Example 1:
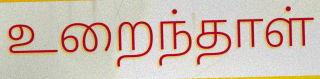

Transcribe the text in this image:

உறைந்தாள்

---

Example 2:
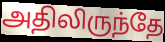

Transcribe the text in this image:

அதிலிருந்தே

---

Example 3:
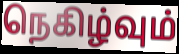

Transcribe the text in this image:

நெகிழ்வும்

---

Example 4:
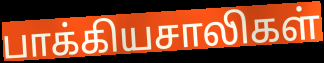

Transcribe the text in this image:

பாக்கியசாலிகள்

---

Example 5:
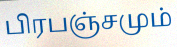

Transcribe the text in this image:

பிரபஞ்சமும்